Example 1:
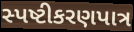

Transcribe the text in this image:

સ્પષ્ટીકરણપાત્ર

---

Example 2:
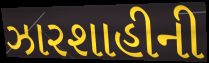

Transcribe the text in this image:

ઝારશાહીની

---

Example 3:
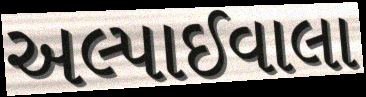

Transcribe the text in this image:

અલ્પાઈવાલા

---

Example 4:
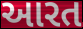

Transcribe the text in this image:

આરત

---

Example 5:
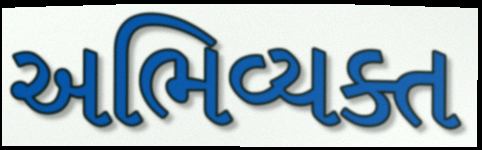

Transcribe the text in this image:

અભિવ્યક્ત